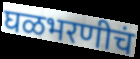
घळभरणीचं